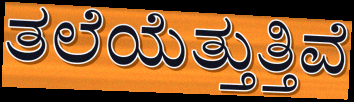
ತಲೆಯೆತ್ತುತ್ತಿವೆ